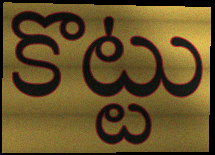
కొట్టు